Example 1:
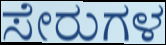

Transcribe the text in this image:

ಸೇರುಗಳ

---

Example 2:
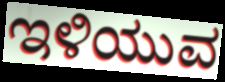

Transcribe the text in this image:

ಇಳಿಯುವ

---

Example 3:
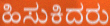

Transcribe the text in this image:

ಹಿಸುಕಿದರು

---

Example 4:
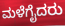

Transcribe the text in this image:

ಮಳೆಗೈದರು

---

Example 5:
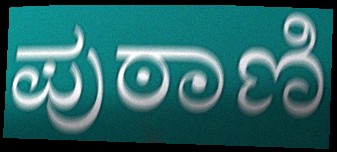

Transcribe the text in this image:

ಪುಠಾಣಿ